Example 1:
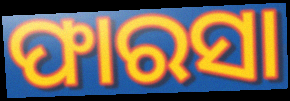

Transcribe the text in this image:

ଫାରସା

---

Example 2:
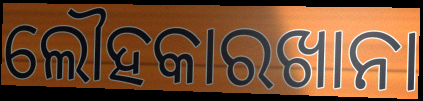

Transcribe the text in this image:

ଲୌହକାରଖାନା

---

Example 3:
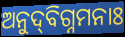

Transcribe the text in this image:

ଅନୁଦ୍‌ବିଗ୍ନମନାଃ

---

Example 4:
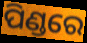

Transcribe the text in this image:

ପିଣ୍ଡରେ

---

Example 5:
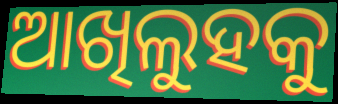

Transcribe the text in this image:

ଆଖିଲୁହକୁ